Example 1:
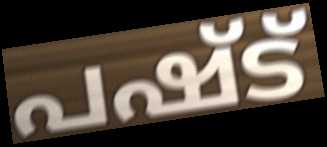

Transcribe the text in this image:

പഷ്ട്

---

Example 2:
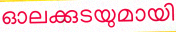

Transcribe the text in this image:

ഓലക്കുടയുമായി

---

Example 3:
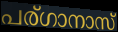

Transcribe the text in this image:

പര്ഗാനാസ്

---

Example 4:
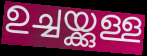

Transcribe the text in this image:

ഉച്ചയ്ക്കുള്ള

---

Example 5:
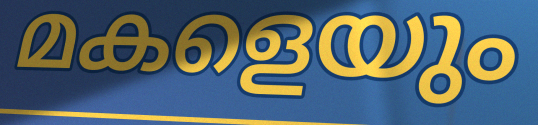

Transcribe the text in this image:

മകളെയും